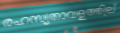
രഹസ്യതാവളത്തില്